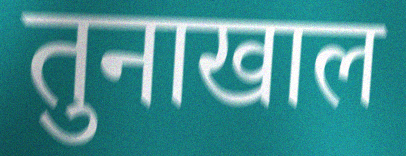
तुनाखाल